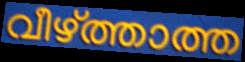
വീഴ്ത്താത്ത